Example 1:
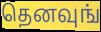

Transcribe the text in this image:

தெனவுங்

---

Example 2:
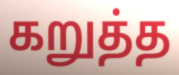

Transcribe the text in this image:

கறுத்த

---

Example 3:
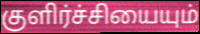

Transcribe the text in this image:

குளிர்ச்சியையும்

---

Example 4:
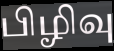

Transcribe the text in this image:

பிழிவு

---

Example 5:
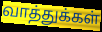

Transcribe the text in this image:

வாத்துக்கள்